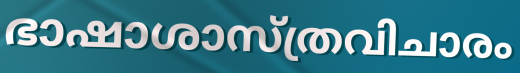
ഭാഷാശാസ്ത്രവിചാരം